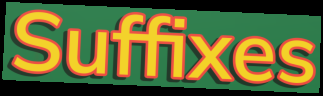
Suffixes